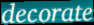
decorate